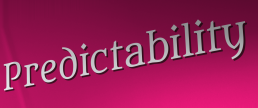
Predictability